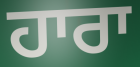
ਹਾਰਾ